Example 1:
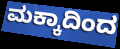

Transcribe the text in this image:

ಮಕ್ಕಾದಿಂದ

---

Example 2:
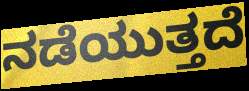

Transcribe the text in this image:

ನಡೆಯುತ್ತದೆ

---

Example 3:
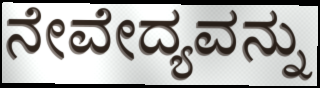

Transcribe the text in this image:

ನೇವೇದ್ಯವನ್ನು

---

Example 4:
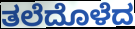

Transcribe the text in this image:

ತಲೆದೊಳೆದ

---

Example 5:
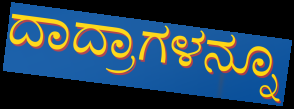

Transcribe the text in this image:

ದಾದ್ರಾಗಳನ್ನೂ